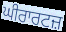
ਘੀਰਾਰਟਜ਼